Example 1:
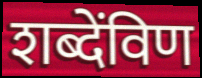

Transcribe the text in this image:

शब्देंविण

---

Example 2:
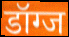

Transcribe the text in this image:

डॉग्ज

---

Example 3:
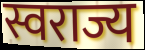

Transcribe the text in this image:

स्वराज्य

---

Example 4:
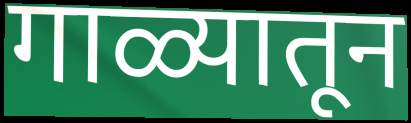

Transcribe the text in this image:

गाळ्यातून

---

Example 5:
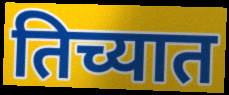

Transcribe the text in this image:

तिच्यात